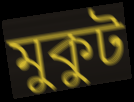
মুকুট